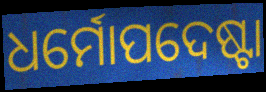
ଧର୍ମୋପଦେଷ୍ଟା